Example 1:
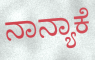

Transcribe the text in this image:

ನಾನ್ಯಾಕೆ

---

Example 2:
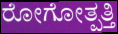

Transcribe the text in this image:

ರೋಗೋತ್ಪತ್ತಿ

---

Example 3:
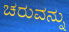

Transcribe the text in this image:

ಚರುವನ್ನು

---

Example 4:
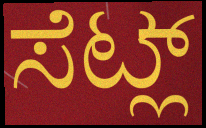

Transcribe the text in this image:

ಸೆಟ್ಲ್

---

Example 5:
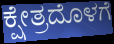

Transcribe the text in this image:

ಕ್ಷೇತ್ರದೊಳಗೆ